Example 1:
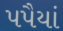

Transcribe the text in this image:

પપૈયાં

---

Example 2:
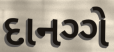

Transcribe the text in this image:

દાનગ્ગે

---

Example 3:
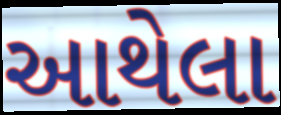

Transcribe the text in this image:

આથેલા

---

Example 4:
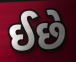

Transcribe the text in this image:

ઈછે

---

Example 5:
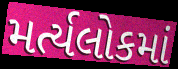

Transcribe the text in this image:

મર્ત્યલોકમાં